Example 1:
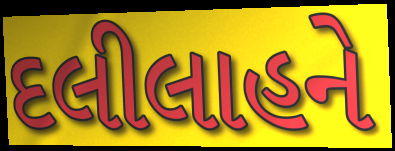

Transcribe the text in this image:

દલીલાહને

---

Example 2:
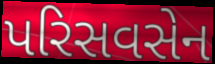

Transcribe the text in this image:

પરિસવસેન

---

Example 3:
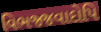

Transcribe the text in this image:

વિભજ્જવાદોપિ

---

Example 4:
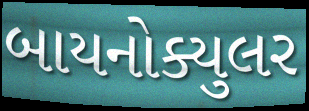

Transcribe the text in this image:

બાયનોક્યુલર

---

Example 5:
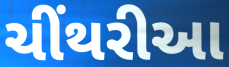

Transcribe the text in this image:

ચીંથરીઆ